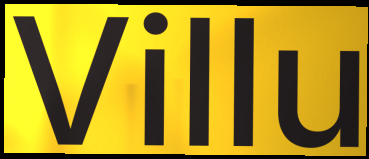
Villu